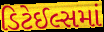
ડિટેઈલ્સમાં